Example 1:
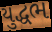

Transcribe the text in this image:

યુદ્ધભ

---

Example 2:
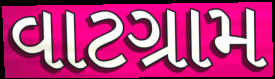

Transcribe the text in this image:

વાટગ્રામ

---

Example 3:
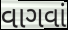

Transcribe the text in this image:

વાગવાં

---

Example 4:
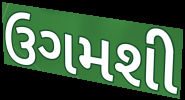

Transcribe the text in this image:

ઉગમશી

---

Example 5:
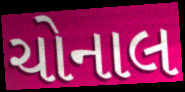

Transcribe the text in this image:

ચોનાલ